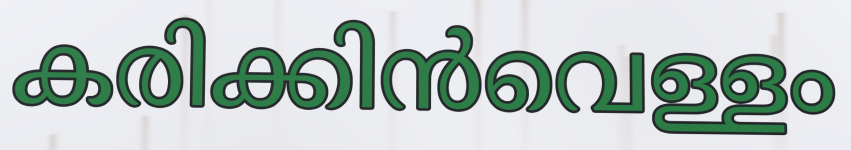
കരിക്കിൻവെള്ളം